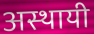
अस्थायी